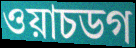
ওয়াচডগ